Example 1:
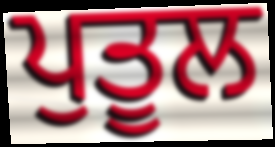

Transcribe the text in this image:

ਪੁਤੂਲ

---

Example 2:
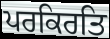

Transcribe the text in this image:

ਪਰਕਿਰਤਿ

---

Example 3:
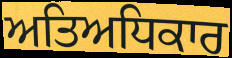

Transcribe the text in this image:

ਅਤਿਅਧਿਕਾਰ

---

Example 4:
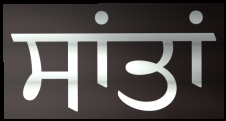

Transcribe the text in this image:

ਸਾਂਤਾਂ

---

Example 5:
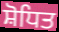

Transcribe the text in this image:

ਸ਼ੋਧਿਤ